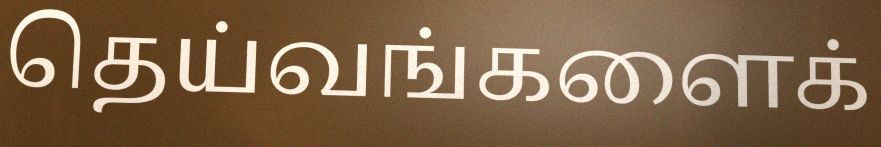
தெய்வங்களைக்